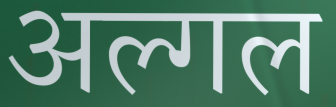
अल्गल